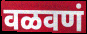
वळवणं